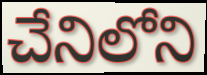
చేనిలోని